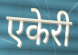
एकेरी